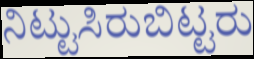
ನಿಟ್ಟುಸಿರುಬಿಟ್ಟರು